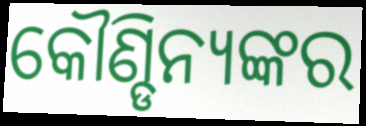
କୌଣ୍ଡିନ୍ୟଙ୍କର